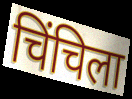
चिंचिला